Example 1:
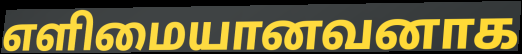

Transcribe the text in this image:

எளிமையானவனாக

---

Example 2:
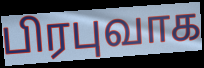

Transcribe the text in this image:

பிரபுவாக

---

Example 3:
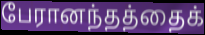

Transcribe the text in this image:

பேரானந்தத்தைக்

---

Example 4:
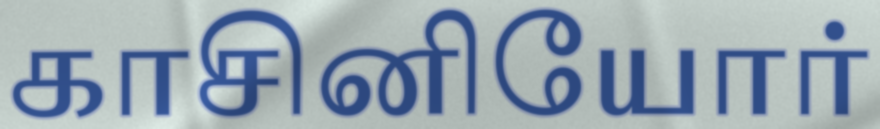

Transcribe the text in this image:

காசினியோர்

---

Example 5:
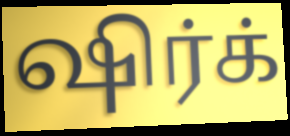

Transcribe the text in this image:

ஷிர்க்